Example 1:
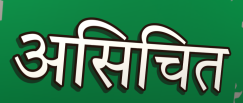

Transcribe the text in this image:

असिचित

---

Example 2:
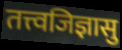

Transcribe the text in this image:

तत्त्वजिज्ञासु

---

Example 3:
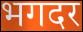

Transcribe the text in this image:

भगदर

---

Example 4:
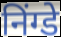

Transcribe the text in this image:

निंग्डे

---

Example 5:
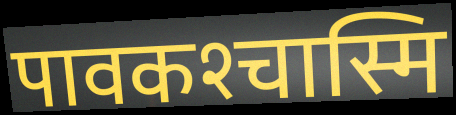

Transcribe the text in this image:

पावकश्चास्मि